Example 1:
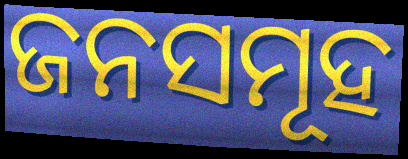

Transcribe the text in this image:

ଜନସମୂହ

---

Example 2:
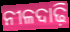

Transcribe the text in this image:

ନୀଳଦାଢ଼ି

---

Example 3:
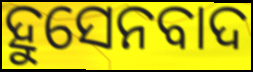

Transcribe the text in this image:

ହୁସେନବାଦ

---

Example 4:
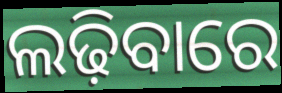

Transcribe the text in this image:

ଲଢ଼ିବାରେ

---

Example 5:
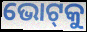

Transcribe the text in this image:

ଭୋଟ୍‍କୁ